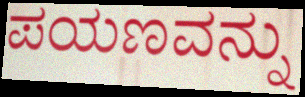
ಪಯಣವನ್ನು